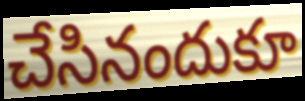
చేసినందుకూ